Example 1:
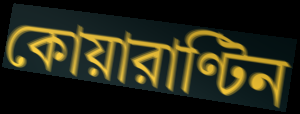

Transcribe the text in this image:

কোয়ারাণ্টিন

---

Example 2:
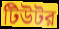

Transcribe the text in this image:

টিউটর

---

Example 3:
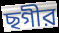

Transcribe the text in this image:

ছগীর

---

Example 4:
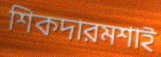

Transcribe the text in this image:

শিকদারমশাই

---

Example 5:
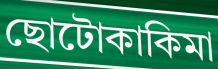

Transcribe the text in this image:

ছোটোকাকিমা